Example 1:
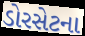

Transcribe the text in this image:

ડોરસેટના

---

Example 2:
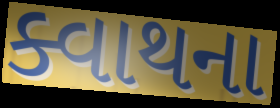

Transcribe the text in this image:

ક્વાથના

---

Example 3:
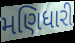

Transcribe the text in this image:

મણિધારી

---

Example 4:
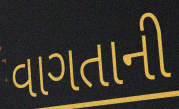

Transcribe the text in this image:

વાગતાની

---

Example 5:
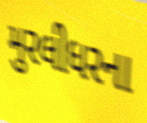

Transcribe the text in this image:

મુરલીધરના